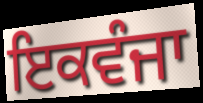
ਇਕਵੰਜਾ